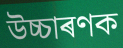
উচ্চাৰণক